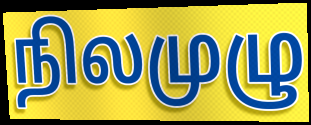
நிலமுழு